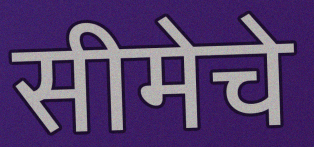
सीमेचे